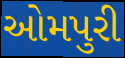
ઓમપુરી